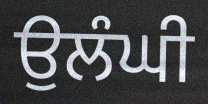
ਉਲੰਘੀ